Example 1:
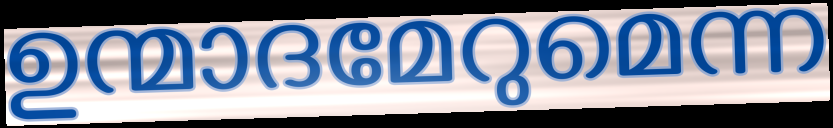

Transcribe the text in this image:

ഉന്മാദമേറുമെന്ന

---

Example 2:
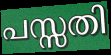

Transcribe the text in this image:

പസ്സതി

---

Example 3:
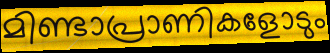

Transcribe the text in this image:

മിണ്ടാപ്രാണികളോടും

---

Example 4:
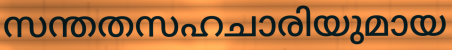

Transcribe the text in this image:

സന്തതസഹചാരിയുമായ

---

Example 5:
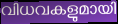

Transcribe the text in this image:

വിധവകളുമായി